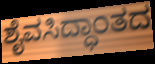
ಶೈವಸಿದ್ಧಾಂತದ